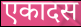
एकादस